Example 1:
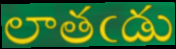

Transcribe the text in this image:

లాతఁడు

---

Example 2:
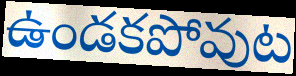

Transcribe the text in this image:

ఉండకపోవుట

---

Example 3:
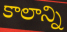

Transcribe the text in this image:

కాలాన్ని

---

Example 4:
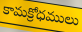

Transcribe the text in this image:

కామక్రోధములు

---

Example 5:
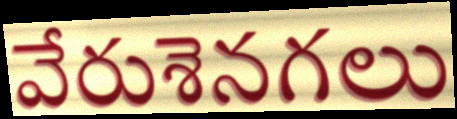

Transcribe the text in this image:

వేరుశెనగలు